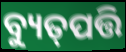
ବ୍ୟୁତ୍‌ପତ୍ତି